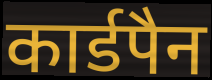
कार्डपैन